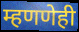
म्हणणेही